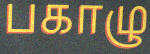
பகாழு